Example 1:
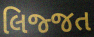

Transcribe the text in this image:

લિજ્જત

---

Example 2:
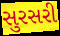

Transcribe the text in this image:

સુરસરી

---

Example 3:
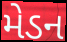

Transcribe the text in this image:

મેડન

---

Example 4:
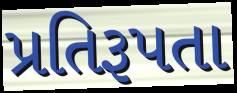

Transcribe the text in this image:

પ્રતિરૂપતા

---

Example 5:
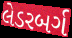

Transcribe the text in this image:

લેડરબર્ગ